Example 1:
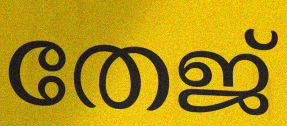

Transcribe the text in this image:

തേജ്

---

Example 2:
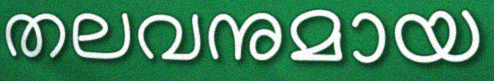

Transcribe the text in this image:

തലവനുമായ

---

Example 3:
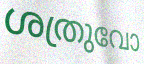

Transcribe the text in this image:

ശത്രുവോ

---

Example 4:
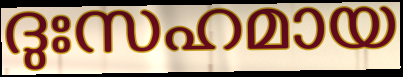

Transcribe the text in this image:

ദുഃസഹമായ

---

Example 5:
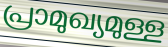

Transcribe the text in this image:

പ്രാമുഖ്യമുള്ള